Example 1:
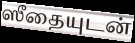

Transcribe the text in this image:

ஸீதையுடன்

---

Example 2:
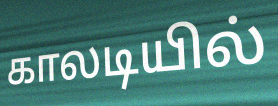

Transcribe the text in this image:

காலடியில்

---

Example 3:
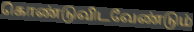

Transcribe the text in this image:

கொண்டுவிடவேண்டும்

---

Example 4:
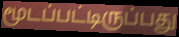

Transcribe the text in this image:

மூடப்பட்டிருப்பது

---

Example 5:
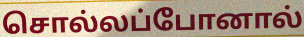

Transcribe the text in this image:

சொல்லப்போனால்